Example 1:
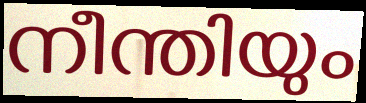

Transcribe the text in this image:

നീന്തിയും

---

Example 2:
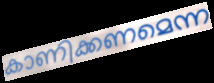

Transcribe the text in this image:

കാണിക്കണമെന്ന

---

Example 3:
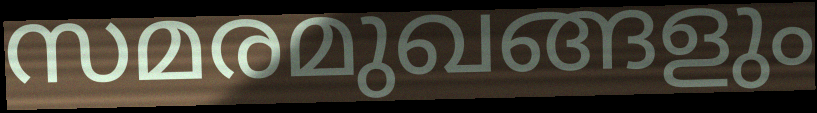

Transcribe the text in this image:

സമരമുഖങ്ങളും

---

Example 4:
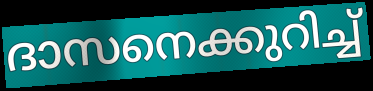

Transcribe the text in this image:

ദാസനെക്കുറിച്ച്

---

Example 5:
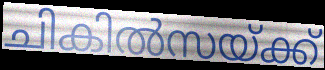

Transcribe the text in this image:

ചികിൽസയ്ക്ക്